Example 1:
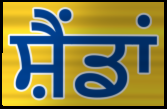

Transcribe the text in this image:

ਸ਼ੈਂਡਾਂ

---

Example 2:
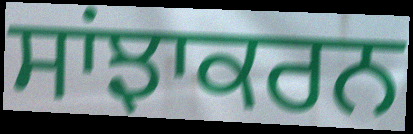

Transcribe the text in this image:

ਸਾਂਝਾਕਰਨ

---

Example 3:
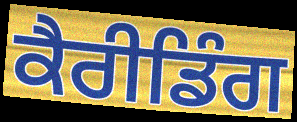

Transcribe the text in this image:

ਕੈਰੀਡਿੰਗ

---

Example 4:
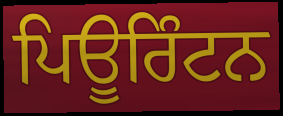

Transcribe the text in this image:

ਪਿਊਰਿੰਟਨ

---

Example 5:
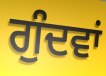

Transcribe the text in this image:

ਗੁੰਦਵਾਂ